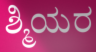
ಶ್ಮಿಯರ